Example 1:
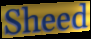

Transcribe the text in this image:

Sheed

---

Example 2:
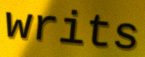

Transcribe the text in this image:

writs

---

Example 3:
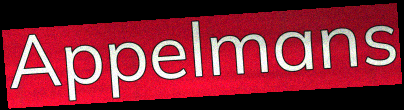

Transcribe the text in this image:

Appelmans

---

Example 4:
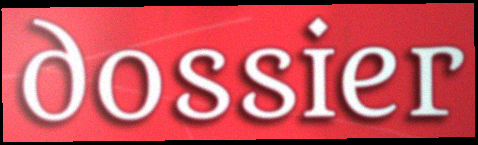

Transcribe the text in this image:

dossier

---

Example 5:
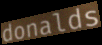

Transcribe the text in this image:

donalds